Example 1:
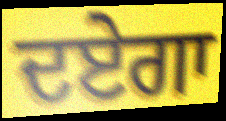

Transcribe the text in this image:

ਦਏਗਾ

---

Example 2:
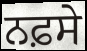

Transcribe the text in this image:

ਨਫ਼ਸੇ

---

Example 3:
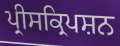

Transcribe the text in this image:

ਪ੍ਰੀਸਕ੍ਰਿਪਸ਼ਨ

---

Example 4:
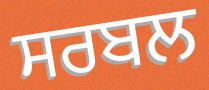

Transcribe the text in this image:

ਸਰਬਲ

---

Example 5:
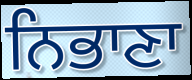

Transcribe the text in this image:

ਨਿਭਾਣਾ